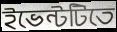
ইভেন্টটিতে